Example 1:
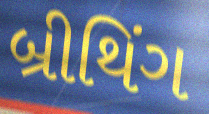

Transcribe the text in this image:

બ્રીથિંગ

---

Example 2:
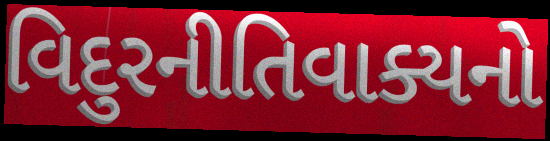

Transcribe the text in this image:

વિદુરનીતિવાક્યનો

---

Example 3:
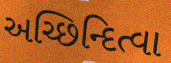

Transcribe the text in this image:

અચ્છિન્દિત્વા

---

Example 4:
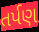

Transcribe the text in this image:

તર્પણ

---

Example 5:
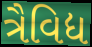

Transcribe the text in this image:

ત્રૈવિદ્ય